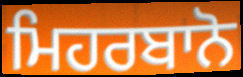
ਮਿਹਰਬਾਨੋ